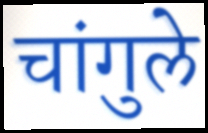
चांगुले